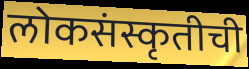
लोकसंस्कृतीची